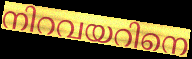
നിറവയറിനെ